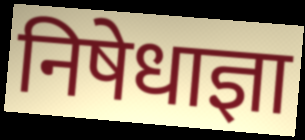
निषेधाज्ञा